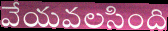
వేయవలసింది